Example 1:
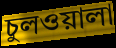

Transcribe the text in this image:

চুলওয়ালা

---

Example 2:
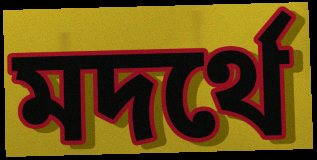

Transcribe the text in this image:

মদর্থে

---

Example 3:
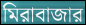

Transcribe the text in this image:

মিরাবাজার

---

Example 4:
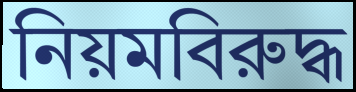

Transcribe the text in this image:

নিয়মবিরুদ্ধ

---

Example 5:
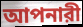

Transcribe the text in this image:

আপনারী